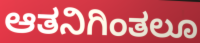
ಆತನಿಗಿಂತಲೂ